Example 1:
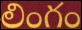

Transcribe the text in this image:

లింగం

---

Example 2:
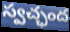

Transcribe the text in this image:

స్వచ్ఛంద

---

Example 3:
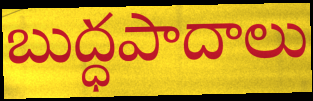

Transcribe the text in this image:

బుద్ధపాదాలు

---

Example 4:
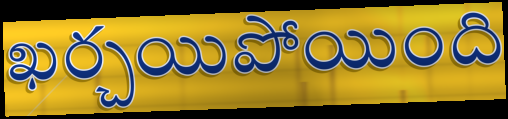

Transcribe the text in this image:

ఖర్చయిపోయింది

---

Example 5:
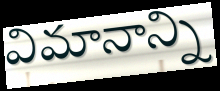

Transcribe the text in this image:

విమానాన్ని